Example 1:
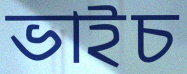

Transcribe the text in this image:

ভাইচ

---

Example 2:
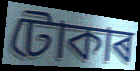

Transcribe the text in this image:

টোকাৰ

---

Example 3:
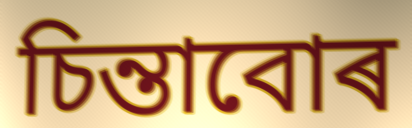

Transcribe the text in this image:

চিন্তাবোৰ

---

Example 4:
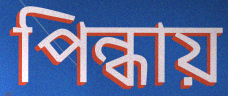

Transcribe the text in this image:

পিন্ধায়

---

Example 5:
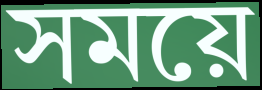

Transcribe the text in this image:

সময়ে